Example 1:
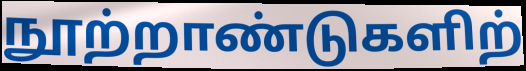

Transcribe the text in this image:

நூற்றாண்டுகளிற்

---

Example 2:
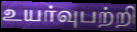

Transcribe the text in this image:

உயர்வுபற்றி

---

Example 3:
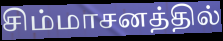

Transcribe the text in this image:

சிம்மாசனத்தில்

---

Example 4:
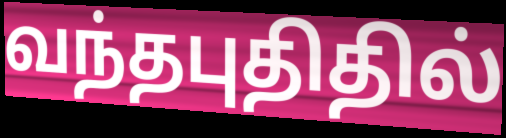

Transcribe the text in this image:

வந்தபுதிதில்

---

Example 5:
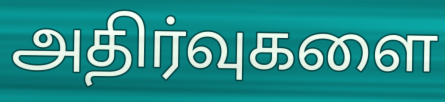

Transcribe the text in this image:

அதிர்வுகளை